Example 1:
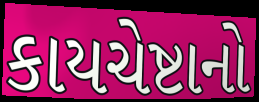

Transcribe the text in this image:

કાયચેષ્ટાનો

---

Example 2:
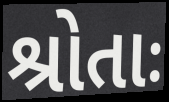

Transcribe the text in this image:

શ્રોતાઃ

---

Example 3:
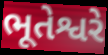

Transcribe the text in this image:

ભૂતેશ્વરે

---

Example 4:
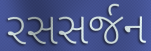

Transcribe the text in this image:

રસસર્જન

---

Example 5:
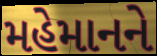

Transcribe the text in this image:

મહેમાનને